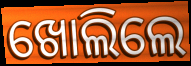
ଖୋଲିଲେ